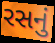
રસનું